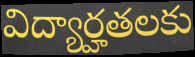
విద్యార్హతలకు